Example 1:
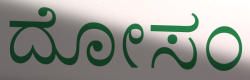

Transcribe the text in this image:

ದೋಸಂ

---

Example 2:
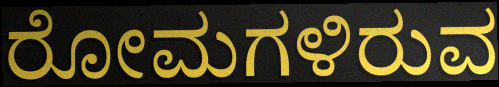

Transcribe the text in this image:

ರೋಮಗಳಿರುವ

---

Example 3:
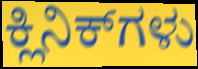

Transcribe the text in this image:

ಕ್ಲಿನಿಕ್‌ಗಳು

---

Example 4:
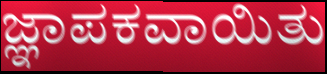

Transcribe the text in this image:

ಜ್ಞಾಪಕವಾಯಿತು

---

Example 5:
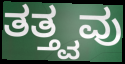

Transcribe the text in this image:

ತತ್ತ್ವವು